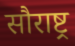
सौराष्ट्र